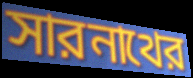
সারনাথের